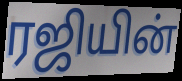
ரஜியின்